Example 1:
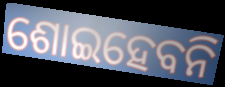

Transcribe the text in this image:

ଶୋଇହେବନି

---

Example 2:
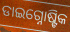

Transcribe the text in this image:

ଡାଇଗ୍ନୋଷ୍ଟିକ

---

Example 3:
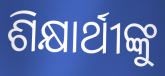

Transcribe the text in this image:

ଶିକ୍ଷାର୍ଥୀଙ୍କୁ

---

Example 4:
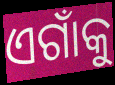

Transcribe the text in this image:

ଏଗାଁକୁ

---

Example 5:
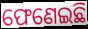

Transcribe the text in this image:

ଫେଣେଇଛି